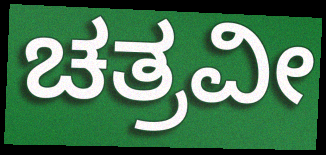
ಚತ್ರವೀ